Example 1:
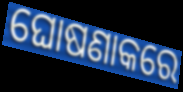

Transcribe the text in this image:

ଘୋଷଣାକରେ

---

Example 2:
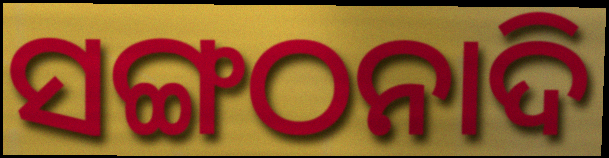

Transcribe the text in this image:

ସଙ୍ଗଠନାଦି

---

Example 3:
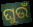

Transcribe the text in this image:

ଘୁଉଁ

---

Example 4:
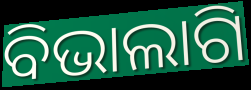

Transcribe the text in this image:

ବିଭାଲାଗି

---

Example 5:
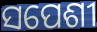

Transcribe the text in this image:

ସପେଶୀ